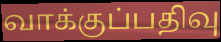
வாக்குப்பதிவு